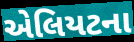
એલિયટના